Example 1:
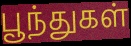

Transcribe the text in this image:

பூந்துகள்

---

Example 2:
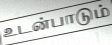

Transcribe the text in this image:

உடன்பாடும்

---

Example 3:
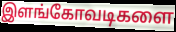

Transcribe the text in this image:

இளங்கோவடிகளை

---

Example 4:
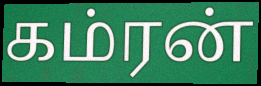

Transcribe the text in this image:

கம்ரன்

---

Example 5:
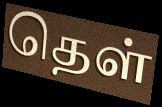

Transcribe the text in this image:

தெள்